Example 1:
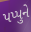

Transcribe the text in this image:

પપ્પુને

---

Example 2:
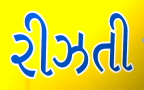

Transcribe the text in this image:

રીઝતી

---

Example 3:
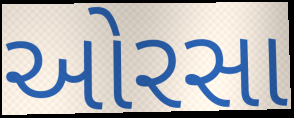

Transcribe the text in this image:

ઓરસા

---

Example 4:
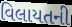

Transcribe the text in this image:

વિલાયતની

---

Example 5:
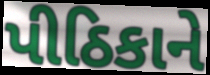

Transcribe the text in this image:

પીઠિકાને